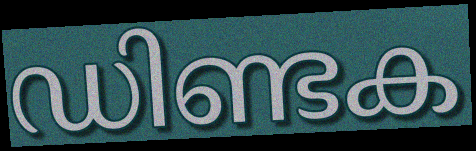
ഡിണ്ടക